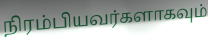
நிரம்பியவர்களாகவும்